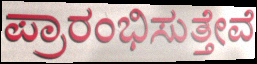
ಪ್ರಾರಂಭಿಸುತ್ತೇವೆ